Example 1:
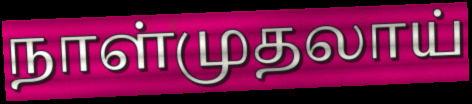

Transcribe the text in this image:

நாள்முதலாய்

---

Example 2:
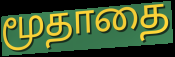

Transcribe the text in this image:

மூதாதை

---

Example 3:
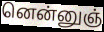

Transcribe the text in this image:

னென்னுஞ்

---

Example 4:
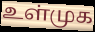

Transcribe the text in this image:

உள்முக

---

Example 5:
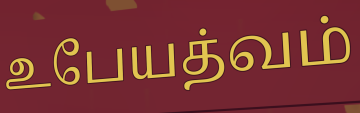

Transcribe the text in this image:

உபேயத்வம்